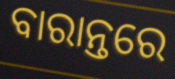
ବାରାନ୍ତରେ